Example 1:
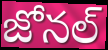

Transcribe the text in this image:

జోనల్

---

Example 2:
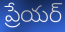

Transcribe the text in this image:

ప్రేయర్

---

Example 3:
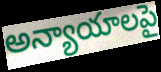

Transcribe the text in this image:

అన్యాయాలపై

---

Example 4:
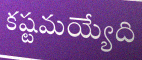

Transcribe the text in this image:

కష్టమయ్యేది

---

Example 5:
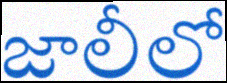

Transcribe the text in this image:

జాలీలో